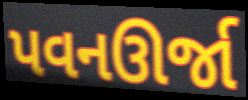
પવનઊર્જા